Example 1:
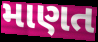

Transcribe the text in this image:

માણત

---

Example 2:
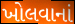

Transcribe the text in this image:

ખોલવાનાં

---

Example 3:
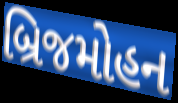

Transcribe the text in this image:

બ્રિજમોહન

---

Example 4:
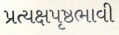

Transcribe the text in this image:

પ્રત્યક્ષપૃષ્ઠભાવી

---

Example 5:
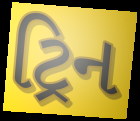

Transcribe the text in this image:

ટ્રિન